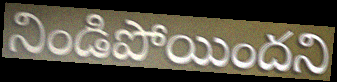
నిండిపోయిందని